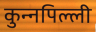
कुन्नपिल्ली